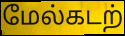
மேல்கடற்